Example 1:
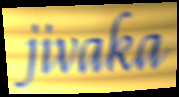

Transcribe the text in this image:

jivaka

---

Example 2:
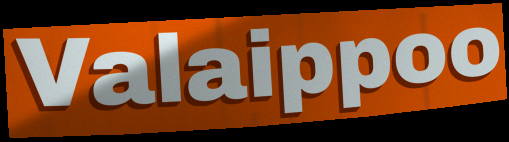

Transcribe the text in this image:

Valaippoo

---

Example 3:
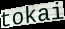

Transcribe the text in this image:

tokai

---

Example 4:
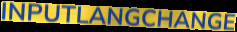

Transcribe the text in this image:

INPUTLANGCHANGE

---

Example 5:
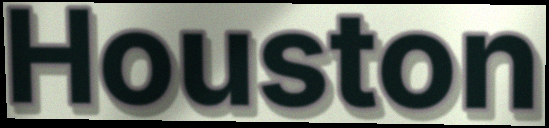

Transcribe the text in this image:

Houston